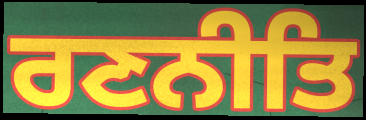
ਰਣਨੀਤਿ